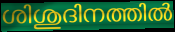
ശിശുദിനത്തിൽ